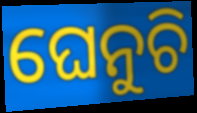
ଘେନୁଚି